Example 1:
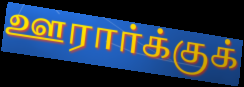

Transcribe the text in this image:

ஊரார்க்குக்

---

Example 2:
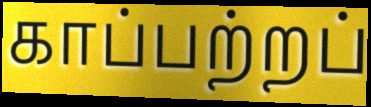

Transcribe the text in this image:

காப்பற்றப்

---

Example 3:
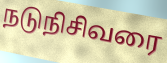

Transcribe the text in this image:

நடுநிசிவரை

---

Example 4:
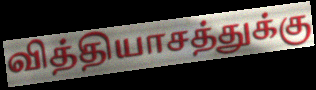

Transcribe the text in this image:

வித்தியாசத்துக்கு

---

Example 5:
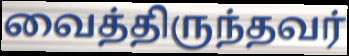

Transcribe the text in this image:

வைத்திருந்தவர்